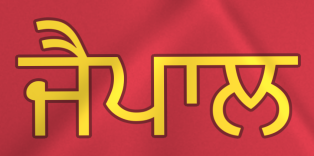
ਜੈਪਾਲ